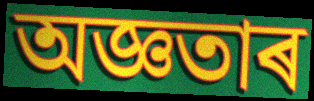
অজ্ঞতাৰ